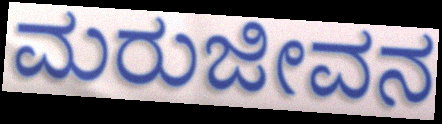
ಮರುಜೀವನ